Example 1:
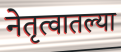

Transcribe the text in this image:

नेतृत्वातल्या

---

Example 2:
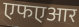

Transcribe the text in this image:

एफएआर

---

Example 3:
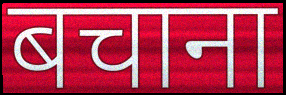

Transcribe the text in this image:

बचाना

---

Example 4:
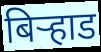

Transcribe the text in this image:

बिर्‍हाड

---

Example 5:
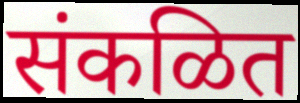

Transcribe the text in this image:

संकळित